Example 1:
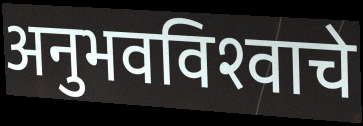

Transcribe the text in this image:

अनुभवविश्वाचे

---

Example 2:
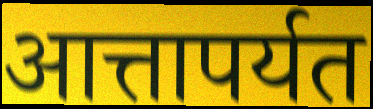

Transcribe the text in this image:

आत्तापर्यत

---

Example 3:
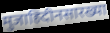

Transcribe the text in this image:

मुजाहिदीनसारख्या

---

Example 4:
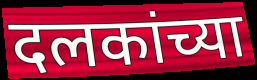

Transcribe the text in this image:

दलकांच्या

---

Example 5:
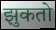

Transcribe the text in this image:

झुकतो